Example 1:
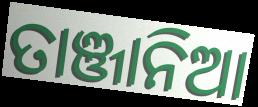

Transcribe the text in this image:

ତାଞ୍ଜାନିଆ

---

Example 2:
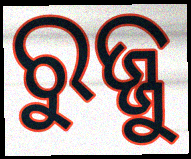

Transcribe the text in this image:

ରୁଜ୍ଜୁ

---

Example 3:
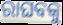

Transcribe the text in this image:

ରାଘବକୁ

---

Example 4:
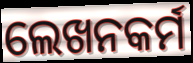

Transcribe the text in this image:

ଲେଖନକର୍ମ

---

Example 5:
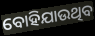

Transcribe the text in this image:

ବୋହିଯାଉଥିବ